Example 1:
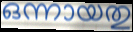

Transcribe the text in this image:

ഒന്നായതു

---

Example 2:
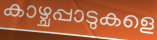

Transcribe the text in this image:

കാഴ്ചപ്പാടുകളെ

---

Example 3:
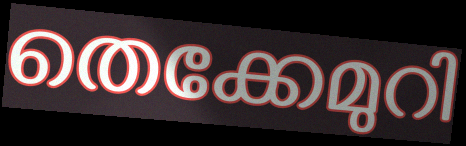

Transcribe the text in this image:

തെക്കേമുറി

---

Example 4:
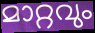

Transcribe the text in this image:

മാറ്റവും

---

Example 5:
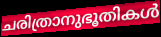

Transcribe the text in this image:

ചരിത്രാനുഭൂതികൾ